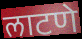
लाटणे